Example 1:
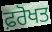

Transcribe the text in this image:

ਫ਼ਰੋਖਤ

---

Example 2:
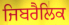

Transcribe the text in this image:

ਜਿਬਰੈਲਿਕ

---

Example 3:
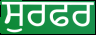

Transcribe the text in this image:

ਸੁਰਫਰ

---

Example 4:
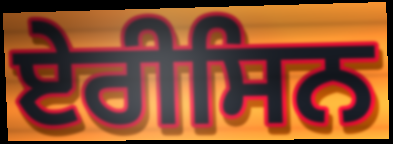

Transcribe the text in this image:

ਏਰੀਸਿਨ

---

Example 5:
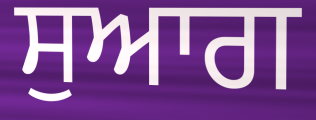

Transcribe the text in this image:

ਸੁਆਗ